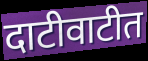
दाटीवाटीत